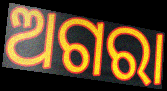
ଅଗରା